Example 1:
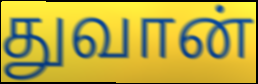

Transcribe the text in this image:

துவான்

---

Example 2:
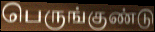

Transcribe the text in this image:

பெருங்குண்டு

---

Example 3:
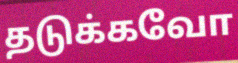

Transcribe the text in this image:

தடுக்கவோ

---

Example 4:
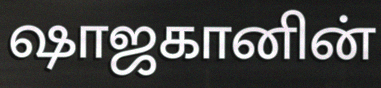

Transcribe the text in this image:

ஷாஜகானின்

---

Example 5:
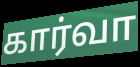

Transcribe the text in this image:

கார்வா